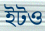
ইটও